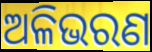
ଅଳିଭରଣ